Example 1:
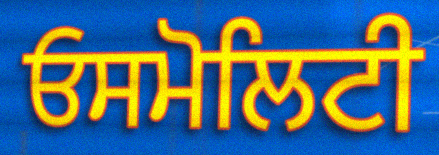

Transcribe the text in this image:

ਓਸਮੋਲਿਟੀ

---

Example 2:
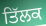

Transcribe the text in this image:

ਤਿੱਲਕ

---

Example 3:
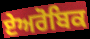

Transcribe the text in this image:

ਏਅਰੋਬਿਕ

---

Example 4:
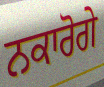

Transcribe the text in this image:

ਨਕਾਰੋਗੇ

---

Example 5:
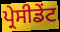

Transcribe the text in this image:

ਪ੍ਰੇਸੀਡੇਂਟ